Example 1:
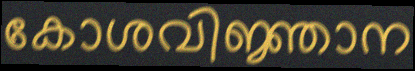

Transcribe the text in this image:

കോശവിജ്ഞാന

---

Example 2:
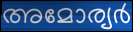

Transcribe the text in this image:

അമോര്യർ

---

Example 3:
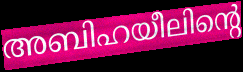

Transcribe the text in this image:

അബിഹയീലിന്റെ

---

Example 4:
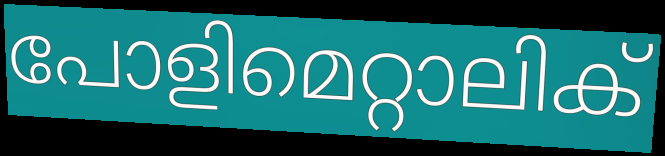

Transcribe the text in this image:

പോളിമെറ്റാലിക്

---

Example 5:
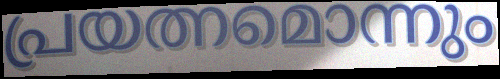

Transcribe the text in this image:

പ്രയത്നമൊന്നും